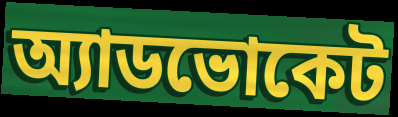
অ্যাডভোকেট